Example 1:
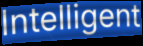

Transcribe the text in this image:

Intelligent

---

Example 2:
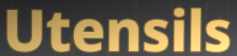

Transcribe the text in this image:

Utensils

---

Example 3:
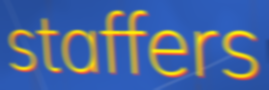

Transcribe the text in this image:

staffers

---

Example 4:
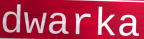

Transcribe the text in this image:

dwarka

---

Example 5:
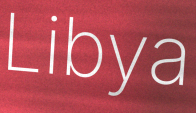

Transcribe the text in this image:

Libya